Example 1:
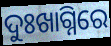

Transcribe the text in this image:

ଦୁଃଖାଗ୍ନିରେ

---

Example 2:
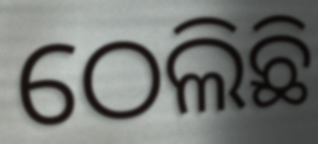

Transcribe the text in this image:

ଠେଲିଛି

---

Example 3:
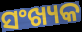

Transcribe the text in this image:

ସଂଖ୍ୟକ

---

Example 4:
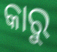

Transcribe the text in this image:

କାରୁ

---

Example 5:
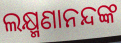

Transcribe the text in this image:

ଲକ୍ଷ୍ମଣାନନ୍ଦଙ୍କ